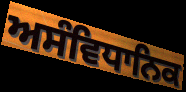
ਅਸੰਵਿਧਾਨਿਕ